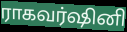
ராகவர்ஷினி